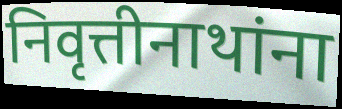
निवृत्तीनाथांना